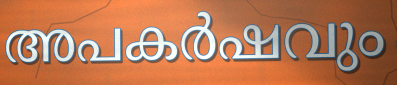
അപകർഷവും